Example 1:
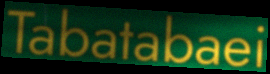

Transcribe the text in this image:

Tabatabaei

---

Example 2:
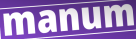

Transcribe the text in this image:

manum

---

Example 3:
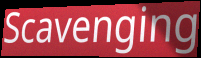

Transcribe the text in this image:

Scavenging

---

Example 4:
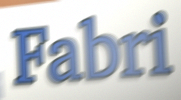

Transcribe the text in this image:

Fabri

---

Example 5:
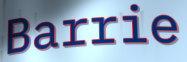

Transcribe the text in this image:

Barrie